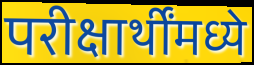
परीक्षार्थींमध्ये